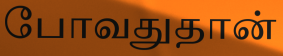
போவதுதான்